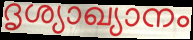
ദൃശ്യാഖ്യാനം